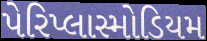
પેરિપ્લાસ્મોડિયમ